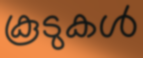
കൂടുകൾ